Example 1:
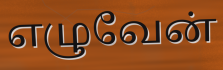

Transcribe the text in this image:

எழுவேன்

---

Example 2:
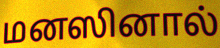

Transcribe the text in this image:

மனஸினால்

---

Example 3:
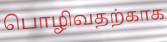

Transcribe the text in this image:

பொழிவதற்காக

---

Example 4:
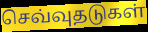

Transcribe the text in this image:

செவ்வுதடுகள்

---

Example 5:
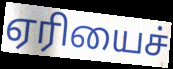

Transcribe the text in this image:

ஏரியைச்